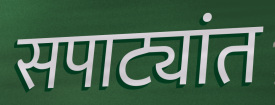
सपाट्यांत